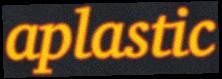
aplastic